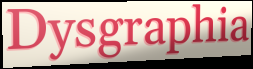
Dysgraphia